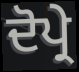
ਦੋਪ੍ਰੇ